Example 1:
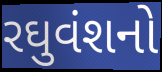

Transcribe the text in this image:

રઘુવંશનો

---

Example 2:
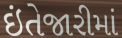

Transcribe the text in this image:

ઇંતેજારીમાં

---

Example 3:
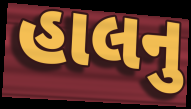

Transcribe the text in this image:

હાલનુ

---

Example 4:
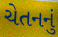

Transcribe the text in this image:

ચેતનનું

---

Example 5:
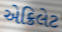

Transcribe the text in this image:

એક્રિલેટ